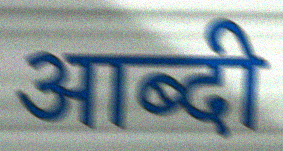
आब्दी